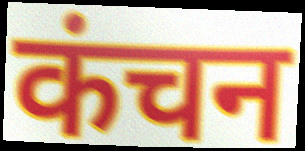
कंचन